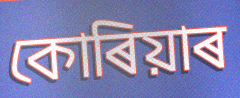
কোৰিয়াৰ